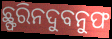
ଛ୍ଫରିନଦୁବନୁଫ